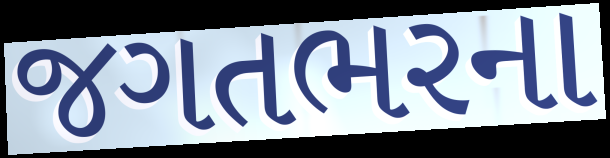
જગતભરના